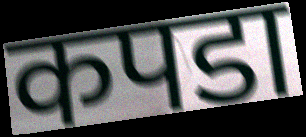
कपडा